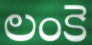
లంకె